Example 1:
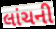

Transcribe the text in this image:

લાંચની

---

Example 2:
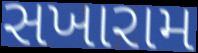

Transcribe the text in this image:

સખારામ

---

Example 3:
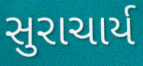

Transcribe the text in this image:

સુરાચાર્ય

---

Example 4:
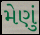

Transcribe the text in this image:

મેણું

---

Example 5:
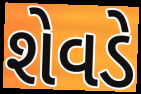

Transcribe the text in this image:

શેવડે